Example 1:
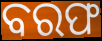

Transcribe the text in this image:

ବରଫ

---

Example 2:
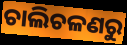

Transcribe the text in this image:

ଚାଲିଚଳଣରୁ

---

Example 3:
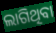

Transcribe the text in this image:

ଲାଗିଥିବା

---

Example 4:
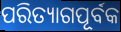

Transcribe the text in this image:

ପରିତ୍ୟାଗପୂର୍ବକ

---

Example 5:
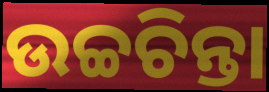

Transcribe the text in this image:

ଉଚ୍ଚଚିନ୍ତା